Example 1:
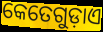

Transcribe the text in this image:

କେତେଗୁଡ଼ାଏ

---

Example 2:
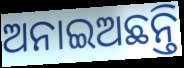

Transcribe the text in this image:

ଅନାଇଅଛନ୍ତି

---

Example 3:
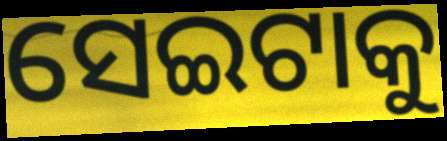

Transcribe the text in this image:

ସେଇଟାକୁ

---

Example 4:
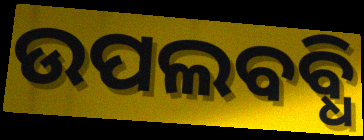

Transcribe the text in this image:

ଉପଲବବ୍ଧି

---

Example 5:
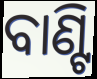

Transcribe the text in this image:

ବାଣ୍ଟି